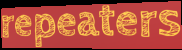
repeaters